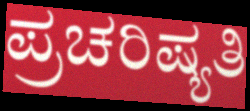
ಪ್ರಚರಿಷ್ಯತಿ